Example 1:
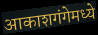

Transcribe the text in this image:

आकाशगंगेमध्ये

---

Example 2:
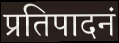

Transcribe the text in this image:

प्रतिपादनं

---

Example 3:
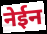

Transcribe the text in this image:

नेईन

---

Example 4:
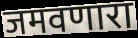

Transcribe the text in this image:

जमवणारा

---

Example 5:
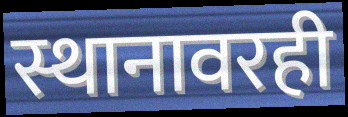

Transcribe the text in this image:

स्थानावरही